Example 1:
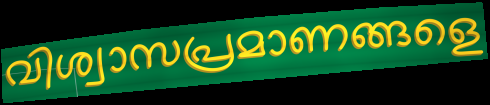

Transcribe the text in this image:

വിശ്വാസപ്രമാണങ്ങളെ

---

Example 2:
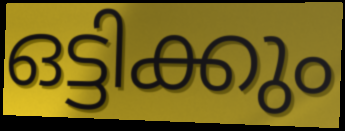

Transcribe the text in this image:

ഒട്ടിക്കും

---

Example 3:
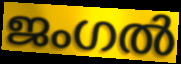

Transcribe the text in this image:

ജംഗൽ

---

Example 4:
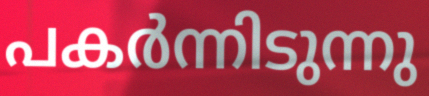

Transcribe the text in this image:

പകർന്നിടുന്നു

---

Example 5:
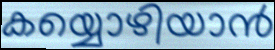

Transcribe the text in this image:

കയ്യൊഴിയാൻ